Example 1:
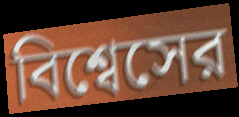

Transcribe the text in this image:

বিশ্বেসের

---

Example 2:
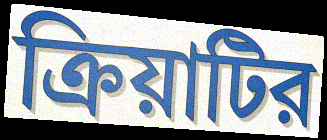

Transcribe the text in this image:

ক্রিয়াটির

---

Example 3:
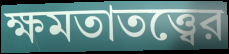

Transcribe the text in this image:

ক্ষমতাতত্ত্বের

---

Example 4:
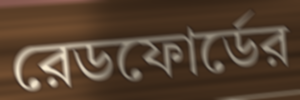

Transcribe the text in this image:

রেডফোর্ডের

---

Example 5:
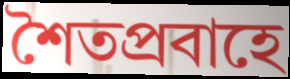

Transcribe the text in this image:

শৈতপ্রবাহে